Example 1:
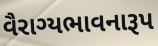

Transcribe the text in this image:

વૈરાગ્યભાવનારૂપ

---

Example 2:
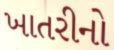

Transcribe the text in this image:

ખાતરીનો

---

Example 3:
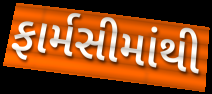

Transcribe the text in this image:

ફાર્મસીમાંથી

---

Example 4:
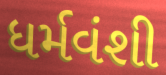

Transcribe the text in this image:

ધર્મવંશી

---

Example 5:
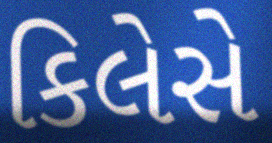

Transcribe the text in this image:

કિલેસે